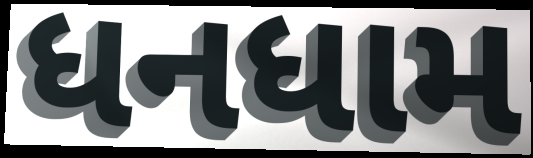
ધનધામ